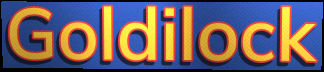
Goldilock